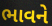
ભાવને